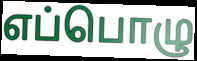
எப்பொழு